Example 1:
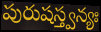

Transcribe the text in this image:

పురుషస్త్వన్యః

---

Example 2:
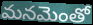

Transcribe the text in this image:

మనమెంతో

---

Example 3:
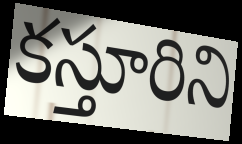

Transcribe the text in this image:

కస్తూరిని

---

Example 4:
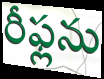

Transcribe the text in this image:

రీఫ్లను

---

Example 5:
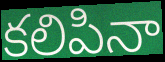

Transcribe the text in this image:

కలిపినా